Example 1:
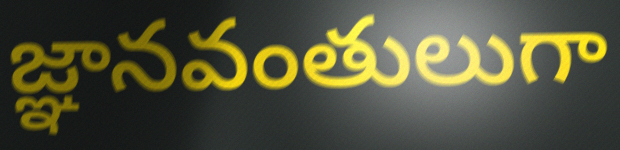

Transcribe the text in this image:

జ్ఞానవంతులుగా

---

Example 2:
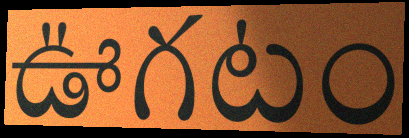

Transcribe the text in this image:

ఊగటం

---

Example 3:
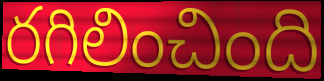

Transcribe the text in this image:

రగిలించింది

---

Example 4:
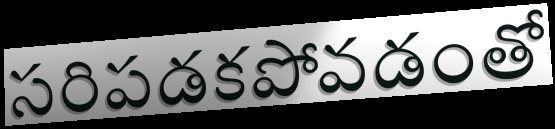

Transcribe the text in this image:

సరిపడకపోవడంతో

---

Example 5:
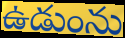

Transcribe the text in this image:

ఉడుంను